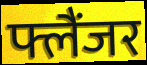
फ्लैंजर